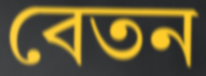
বেতন